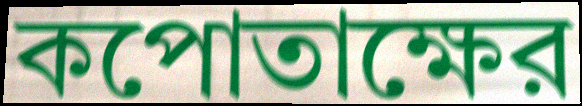
কপোতাক্ষের